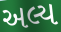
અલ્ય